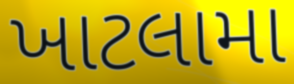
ખાટલામા